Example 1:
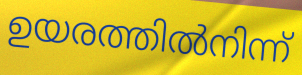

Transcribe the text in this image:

ഉയരത്തിൽനിന്ന്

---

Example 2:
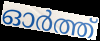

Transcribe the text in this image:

ഓർത്ത്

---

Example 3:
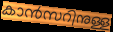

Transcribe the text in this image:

കാൻസറിനുള്ള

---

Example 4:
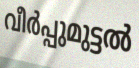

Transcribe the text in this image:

വീർപ്പുമുട്ടൽ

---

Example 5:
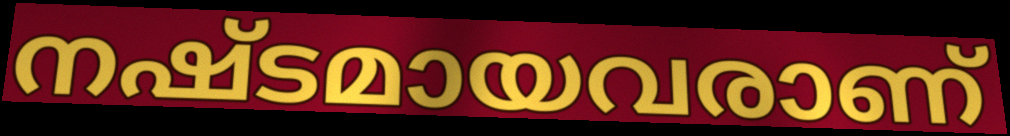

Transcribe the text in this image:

നഷ്ടമായവരാണ്